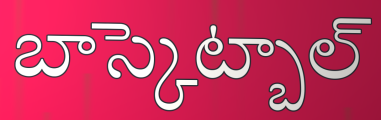
బాస్కెట్బాల్